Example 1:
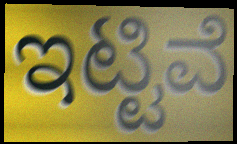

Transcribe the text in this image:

ಇಟ್ಟಿವೆ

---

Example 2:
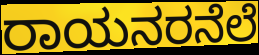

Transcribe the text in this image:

ರಾಯನರನೆಲೆ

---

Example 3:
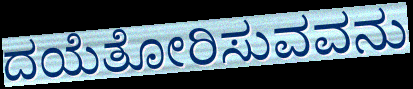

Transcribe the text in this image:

ದಯೆತೋರಿಸುವವನು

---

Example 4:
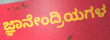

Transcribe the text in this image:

ಜ್ಞಾನೇಂದ್ರಿಯಗಳ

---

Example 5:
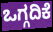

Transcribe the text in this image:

ಒಗ್ಗದಿಕೆ